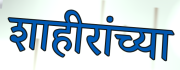
शाहीरांच्या